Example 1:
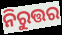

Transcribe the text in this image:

ନିରୁତ୍ତର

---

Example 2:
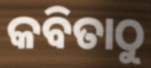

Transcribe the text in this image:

କବିତାଠୁ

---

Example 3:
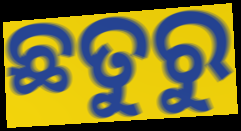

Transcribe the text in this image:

ଛତୁରୁ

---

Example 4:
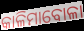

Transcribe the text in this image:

କାଳିମାବୋଳା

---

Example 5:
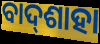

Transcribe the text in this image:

ବାଦ୍‌ଶାହା